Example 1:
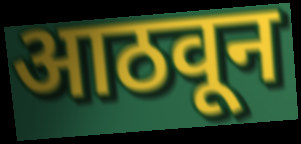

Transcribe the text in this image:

आठवून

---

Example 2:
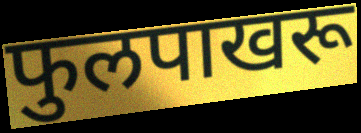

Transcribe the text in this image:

फुलपाखरू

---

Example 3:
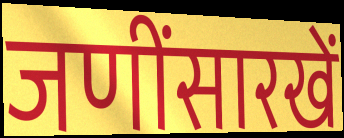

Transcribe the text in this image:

जणींसारखें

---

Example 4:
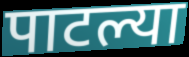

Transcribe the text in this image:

पाटल्या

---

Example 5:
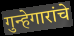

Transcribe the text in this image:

गुन्हेगारांचे